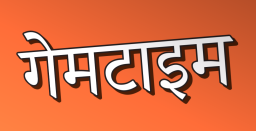
गेमटाइम